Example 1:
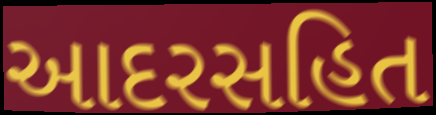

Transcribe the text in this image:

આદરસહિત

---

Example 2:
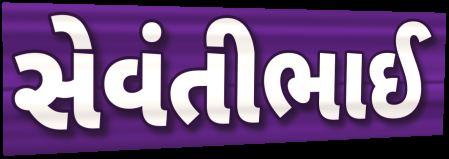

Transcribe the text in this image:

સેવંતીભાઈ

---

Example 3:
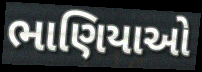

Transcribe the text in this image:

ભાણિયાઓ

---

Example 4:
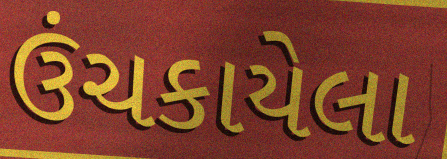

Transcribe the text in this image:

ઉંચકાયેલા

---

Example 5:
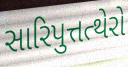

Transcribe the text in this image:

સારિપુત્તત્થેરો